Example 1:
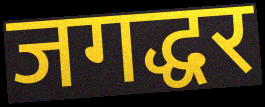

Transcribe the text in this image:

जगद्धर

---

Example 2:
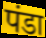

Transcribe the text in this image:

पंडा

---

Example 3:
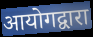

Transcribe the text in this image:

आयोगद्वारा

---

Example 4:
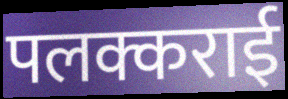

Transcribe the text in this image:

पलक्कराई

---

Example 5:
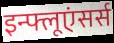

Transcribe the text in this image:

इन्फ्लूएंसर्स